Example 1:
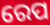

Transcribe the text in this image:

ରେପ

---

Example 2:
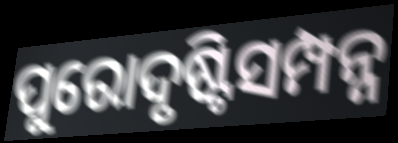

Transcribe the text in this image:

ପୁରୋଦୃଷ୍ଟିସମ୍ପନ୍ନ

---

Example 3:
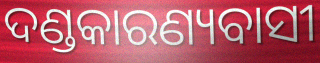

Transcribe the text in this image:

ଦଣ୍ଡକାରଣ୍ୟବାସୀ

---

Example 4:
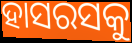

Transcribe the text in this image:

ହାସରସକୁ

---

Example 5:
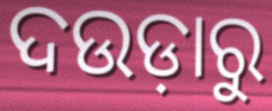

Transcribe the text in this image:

ଦଉଡ଼ାରୁ